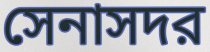
সেনাসদর